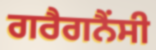
ਗਰੈਗਨੈਂਸੀ